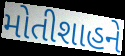
મોતીશાહને